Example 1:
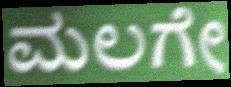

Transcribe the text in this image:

ಮಲಗೇ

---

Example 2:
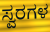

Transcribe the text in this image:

ಸ್ವರಗಳ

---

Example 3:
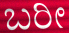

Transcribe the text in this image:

ಬರೀ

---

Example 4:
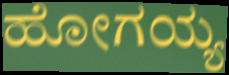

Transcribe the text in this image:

ಹೋಗಯ್ಯ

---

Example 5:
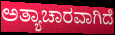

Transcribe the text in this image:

ಅತ್ಯಾಚಾರವಾಗಿದೆ